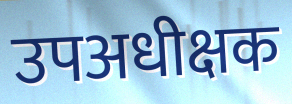
उपअधीक्षक